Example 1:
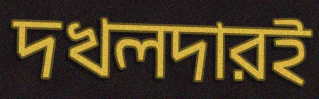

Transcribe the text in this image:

দখলদারই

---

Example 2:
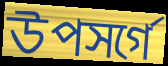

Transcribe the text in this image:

উপসর্গে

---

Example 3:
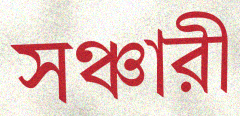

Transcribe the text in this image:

সঞ্চারী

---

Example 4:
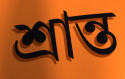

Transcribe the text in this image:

শ্রান্ত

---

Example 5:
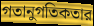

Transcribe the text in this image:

গতানুগতিকতার